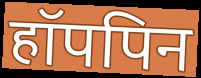
हॉपपिन